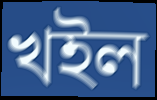
খইল